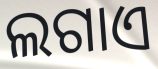
ଲଗାଏ